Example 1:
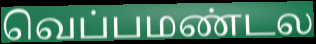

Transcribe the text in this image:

வெப்பமண்டல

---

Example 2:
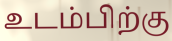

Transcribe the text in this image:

உடம்பிற்கு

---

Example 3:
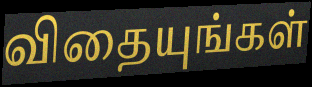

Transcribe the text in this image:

விதையுங்கள்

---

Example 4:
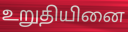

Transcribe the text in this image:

உறுதியினை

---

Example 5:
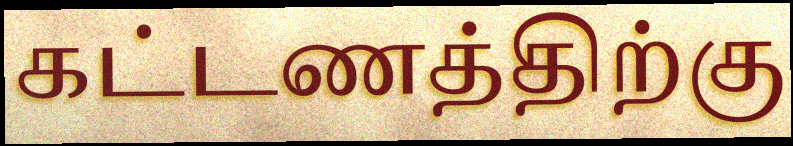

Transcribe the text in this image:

கட்டணத்திற்கு